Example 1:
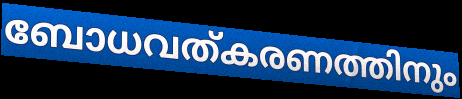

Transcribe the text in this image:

ബോധവത്കരണത്തിനും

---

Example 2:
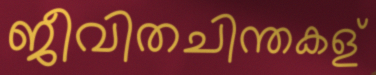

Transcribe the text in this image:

ജീവിതചിന്തകള്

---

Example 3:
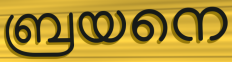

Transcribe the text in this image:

ബ്രയനെ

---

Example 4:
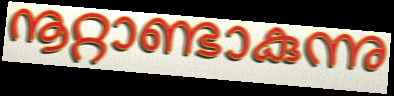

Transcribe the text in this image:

നൂറ്റാണ്ടാകുന്നു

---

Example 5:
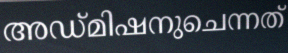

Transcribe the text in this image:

അഡ്മിഷനുചെന്നത്